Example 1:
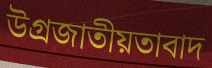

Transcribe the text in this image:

উগ্রজাতীয়তাবাদ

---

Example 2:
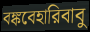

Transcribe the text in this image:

বঙ্কবেহারিবাবু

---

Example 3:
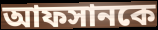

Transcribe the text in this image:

আফসানকে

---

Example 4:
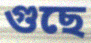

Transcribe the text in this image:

গুছে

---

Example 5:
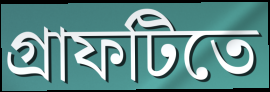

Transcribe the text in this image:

গ্রাফটিতে